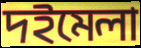
দইমেলা